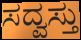
ಸದ್ವಸ್ತು